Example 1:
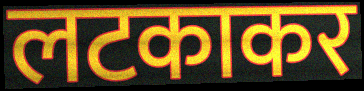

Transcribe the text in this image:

लटकाकर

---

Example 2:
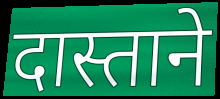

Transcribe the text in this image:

दास्ताने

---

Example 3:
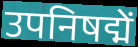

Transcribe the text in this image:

उपनिषद्में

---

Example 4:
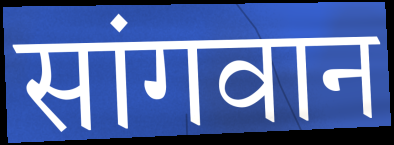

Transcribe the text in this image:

सांगवान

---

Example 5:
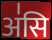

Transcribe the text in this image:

अ॑सि